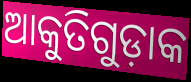
ଆକୁତିଗୁଡ଼ାକ